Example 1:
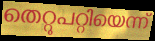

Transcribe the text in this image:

തെറ്റുപറ്റിയെന്ന്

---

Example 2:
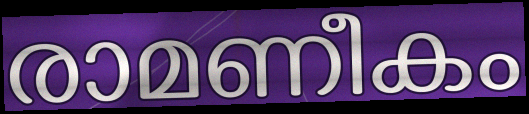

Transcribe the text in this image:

രാമണീകം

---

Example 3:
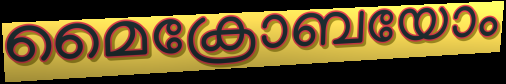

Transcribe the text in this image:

മൈക്രോബയോം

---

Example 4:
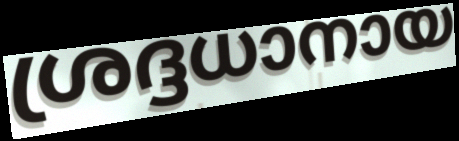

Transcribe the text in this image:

ശ്രദ്ദധാനായ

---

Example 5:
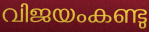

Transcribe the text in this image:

വിജയംകണ്ടു